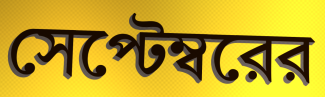
সেপ্টেম্বরের